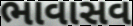
ભાવાસવ